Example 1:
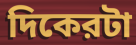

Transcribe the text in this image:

দিকেরটা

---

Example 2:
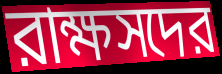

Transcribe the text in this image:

রাক্ষসদের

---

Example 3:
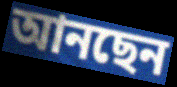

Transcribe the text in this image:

আনছেন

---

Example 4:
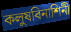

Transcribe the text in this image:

কলুষবিনাশিনী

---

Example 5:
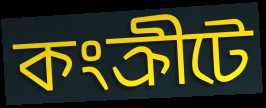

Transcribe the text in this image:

কংক্রীটে